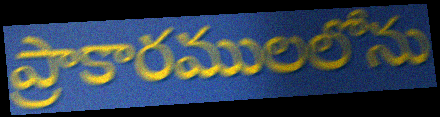
ప్రాకారములలోను